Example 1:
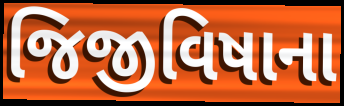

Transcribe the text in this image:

જિજીવિષાના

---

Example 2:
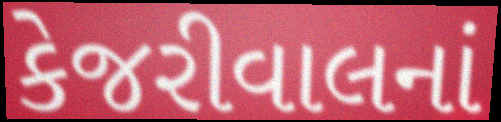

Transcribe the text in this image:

કેજરીવાલનાં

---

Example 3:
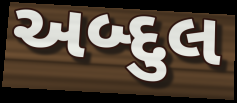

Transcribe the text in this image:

અબ્દુલ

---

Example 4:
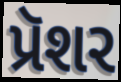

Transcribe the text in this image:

પ્રૅશર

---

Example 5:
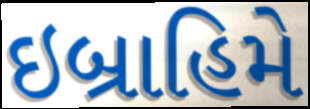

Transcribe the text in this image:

ઇબ્રાહિમે